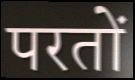
परतों